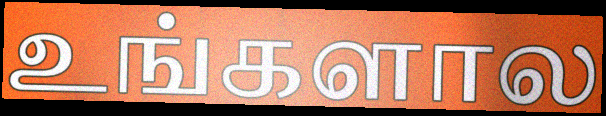
உங்களால